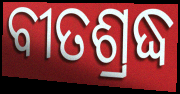
ବୀତଶ୍ରଦ୍ଧ